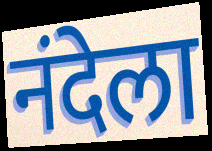
नंदेला